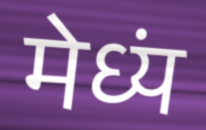
मेध्यं